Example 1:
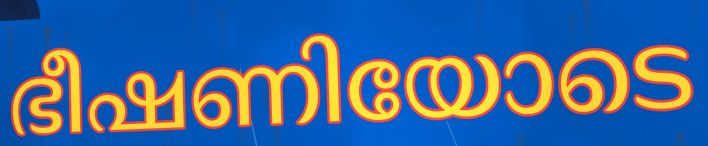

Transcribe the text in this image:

ഭീഷണിയോടെ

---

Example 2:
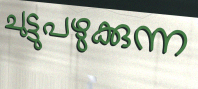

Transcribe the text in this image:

ചുട്ടുപഴുക്കുന്ന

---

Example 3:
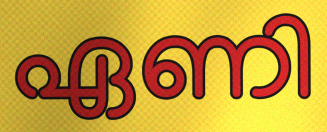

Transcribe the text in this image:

ഏണി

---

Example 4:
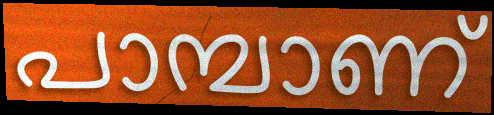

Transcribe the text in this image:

പാമ്പാണ്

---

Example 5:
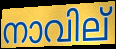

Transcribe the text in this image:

നാവില്